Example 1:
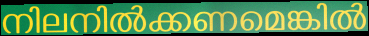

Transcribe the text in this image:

നിലനിൽക്കണമെങ്കിൽ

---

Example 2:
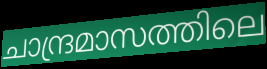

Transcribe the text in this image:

ചാന്ദ്രമാസത്തിലെ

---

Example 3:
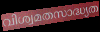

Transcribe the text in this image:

വിശ്വമതസാദ്ധ്യത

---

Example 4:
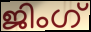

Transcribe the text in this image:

ജിംഗ്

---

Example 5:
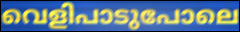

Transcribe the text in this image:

വെളിപാടുപോലെ